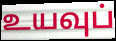
உயவுப்